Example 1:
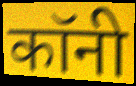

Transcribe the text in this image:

कॉनी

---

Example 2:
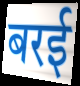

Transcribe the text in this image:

बरई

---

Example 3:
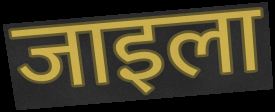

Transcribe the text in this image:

जाइला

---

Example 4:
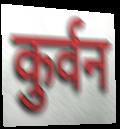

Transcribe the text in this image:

कुर्वन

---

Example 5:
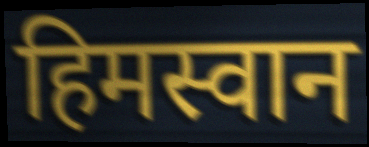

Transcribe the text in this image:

हिमस्वान